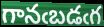
గానఁబడఁగ